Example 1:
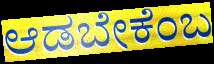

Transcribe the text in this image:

ಆಡಬೇಕೆಂಬ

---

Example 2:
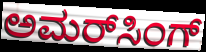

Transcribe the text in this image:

ಅಮರ್‌ಸಿಂಗ್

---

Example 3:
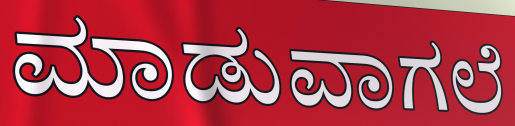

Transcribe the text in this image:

ಮಾಡುವಾಗಲೆ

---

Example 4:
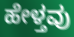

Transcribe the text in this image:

ಹೇಳ್ತವು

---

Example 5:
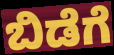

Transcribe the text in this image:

ಬಿಡೆಗೆ